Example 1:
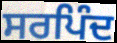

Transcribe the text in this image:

ਸਰਪਿੰਦ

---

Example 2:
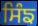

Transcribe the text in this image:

ਸਿੰਙ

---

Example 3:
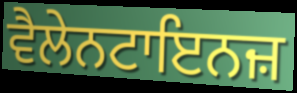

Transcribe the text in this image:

ਵੈਲੇਨਟਾਇਨਜ਼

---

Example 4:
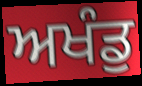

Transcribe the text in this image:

ਅਖੰਡੁ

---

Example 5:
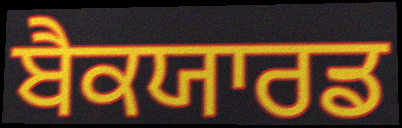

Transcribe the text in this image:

ਬੈਕਯਾਰਡ